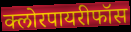
क्लोरपायरीफॉस